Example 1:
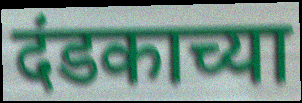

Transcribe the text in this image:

दंडकाच्या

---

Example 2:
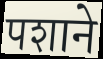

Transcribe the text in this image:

पशाने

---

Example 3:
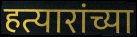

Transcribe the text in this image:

हत्यारांच्या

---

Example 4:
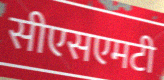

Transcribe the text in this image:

सीएसएमटी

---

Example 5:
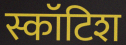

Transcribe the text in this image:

स्कॉटिश